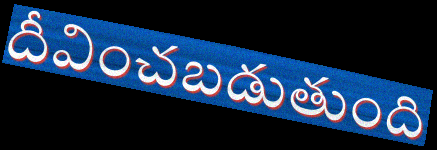
దీవించబడుతుంది